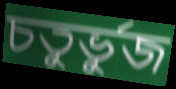
চতুৰ্ভুজ